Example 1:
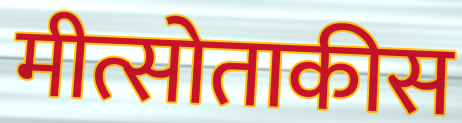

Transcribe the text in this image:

मीत्सोताकीस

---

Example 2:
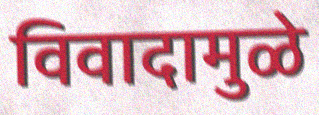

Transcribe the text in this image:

विवादामुळे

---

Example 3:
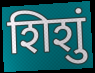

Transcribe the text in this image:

शिशुं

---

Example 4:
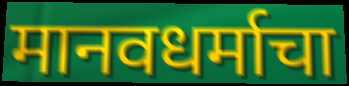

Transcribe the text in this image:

मानवधर्माचा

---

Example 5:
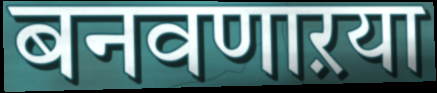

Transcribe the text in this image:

बनवणाऱया